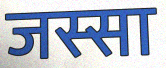
जस्सा